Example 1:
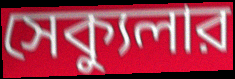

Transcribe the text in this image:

সেক্যুলার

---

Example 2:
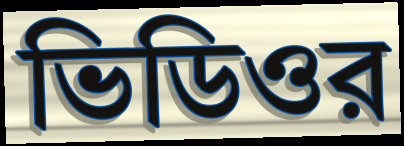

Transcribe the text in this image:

ভিডিওর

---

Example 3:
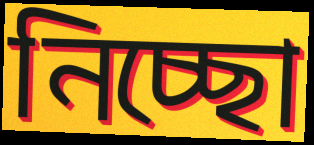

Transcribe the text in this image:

নিচ্ছো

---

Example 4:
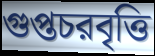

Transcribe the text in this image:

গুপ্তচরবৃত্তি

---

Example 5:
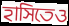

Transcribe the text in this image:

হাসিতেও